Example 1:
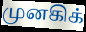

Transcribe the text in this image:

முனகிக்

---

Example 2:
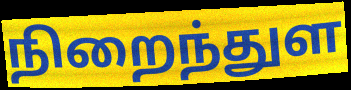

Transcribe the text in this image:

நிறைந்துள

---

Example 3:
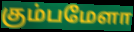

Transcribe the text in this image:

கும்பமேளா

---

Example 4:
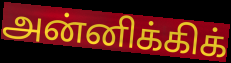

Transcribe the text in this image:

அன்னிக்கிக்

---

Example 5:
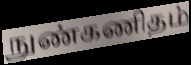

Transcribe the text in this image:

நுண்கணிதம்